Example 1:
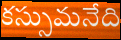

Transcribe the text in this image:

కస్సుమనేది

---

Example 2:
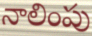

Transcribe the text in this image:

నాలింపు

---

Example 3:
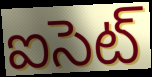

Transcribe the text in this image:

ఐసెట్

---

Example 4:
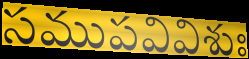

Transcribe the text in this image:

సముపవివిశుః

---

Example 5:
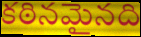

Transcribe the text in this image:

కఠినమైనది